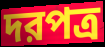
দরপত্র